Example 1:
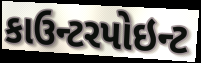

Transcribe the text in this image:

કાઉન્ટરપોઇન્ટ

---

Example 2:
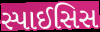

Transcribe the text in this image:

સ્પાઈસિસ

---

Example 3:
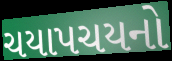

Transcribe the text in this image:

ચયાપચયનો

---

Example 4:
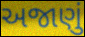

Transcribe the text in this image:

અજાણું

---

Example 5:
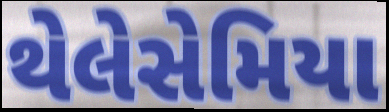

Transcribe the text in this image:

થેલેસેમિયા